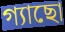
গ্যাছো